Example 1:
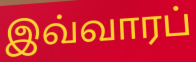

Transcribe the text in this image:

இவ்வாரப்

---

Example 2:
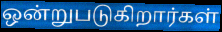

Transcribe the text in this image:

ஒன்றுபடுகிறார்கள்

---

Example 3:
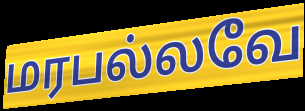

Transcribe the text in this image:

மரபல்லவே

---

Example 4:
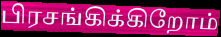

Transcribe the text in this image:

பிரசங்கிக்கிறோம்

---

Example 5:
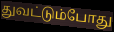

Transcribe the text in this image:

துவட்டும்போது